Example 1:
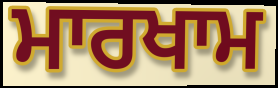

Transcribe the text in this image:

ਮਾਰਖਾਮ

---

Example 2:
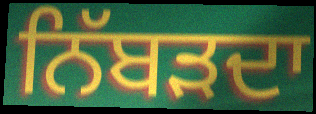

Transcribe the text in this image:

ਨਿੱਬੜਦਾ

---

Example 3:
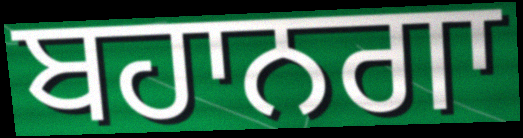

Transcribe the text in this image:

ਬਹਾਨਗਾ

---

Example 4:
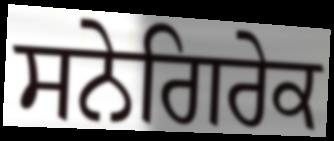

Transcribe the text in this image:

ਸਨੇਗਿਰੇਕ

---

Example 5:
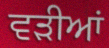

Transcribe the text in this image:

ਵੜੀਆਂ